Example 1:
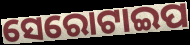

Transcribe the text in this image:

ସେରୋଟାଇପ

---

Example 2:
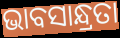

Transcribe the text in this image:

ଭାବସାନ୍ଧ୍ରତା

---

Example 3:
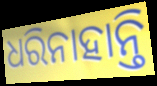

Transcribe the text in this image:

ଧରିନାହାନ୍ତି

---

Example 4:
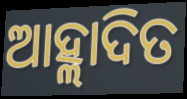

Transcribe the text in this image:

ଆହ୍ଲାଦିତ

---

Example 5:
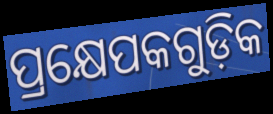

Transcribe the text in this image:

ପ୍ରକ୍ଷେପକଗୁଡ଼ିକ